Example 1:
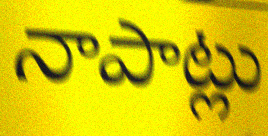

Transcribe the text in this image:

నాపాట్లు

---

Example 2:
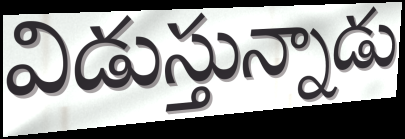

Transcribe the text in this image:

విడుస్తున్నాడు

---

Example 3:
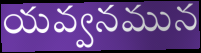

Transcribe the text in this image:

యవ్వనమున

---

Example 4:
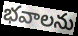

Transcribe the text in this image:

భవాలను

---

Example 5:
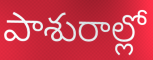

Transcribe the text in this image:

పాశురాల్లో